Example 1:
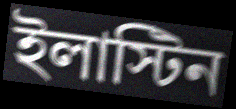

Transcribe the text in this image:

ইলাস্টিন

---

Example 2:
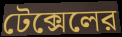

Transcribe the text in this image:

টেক্সেলের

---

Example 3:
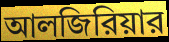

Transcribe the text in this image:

আলজিরিয়ার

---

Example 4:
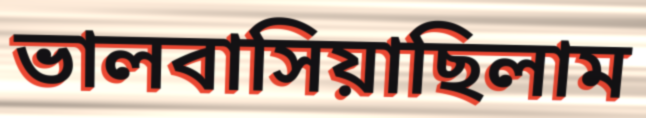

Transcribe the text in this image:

ভালবাসিয়াছিলাম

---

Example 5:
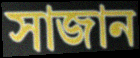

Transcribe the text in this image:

সাজান